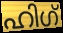
ഹിഗ്